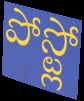
పోస్ట్లో